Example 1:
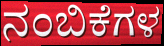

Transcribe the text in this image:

ನಂಬಿಕೆಗಳ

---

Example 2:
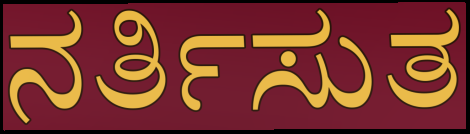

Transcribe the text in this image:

ನರ್ತಿಸುತ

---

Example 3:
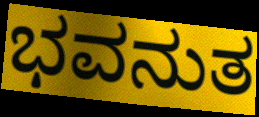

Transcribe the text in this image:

ಭವನುತ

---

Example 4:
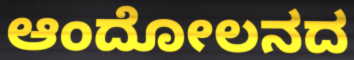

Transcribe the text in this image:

ಆಂದೋಲನದ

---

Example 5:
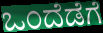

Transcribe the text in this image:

ಒಂದೆಡೆಗೆ